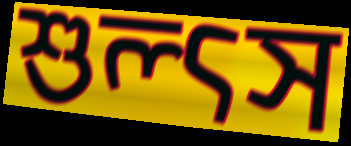
শুল্ৎস